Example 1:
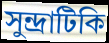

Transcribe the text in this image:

সুন্দ্রাটিকি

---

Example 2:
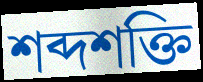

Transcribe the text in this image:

শব্দশক্তি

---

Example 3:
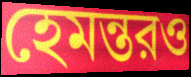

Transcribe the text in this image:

হেমন্তরও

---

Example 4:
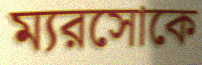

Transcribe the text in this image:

ম্যরসোকে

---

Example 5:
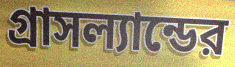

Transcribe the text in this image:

গ্রাসল্যান্ডের